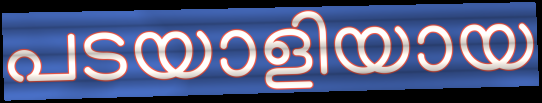
പടയാളിയായ